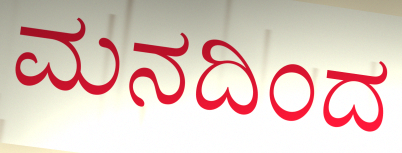
ಮನದಿಂದ